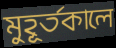
মুহূর্তকালে